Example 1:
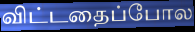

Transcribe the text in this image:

விட்டதைப்போல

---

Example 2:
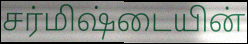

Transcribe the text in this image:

சர்மிஷ்டையின்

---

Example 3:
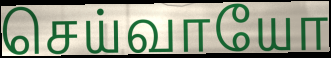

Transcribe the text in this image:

செய்வாயோ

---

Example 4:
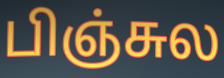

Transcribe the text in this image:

பிஞ்சுல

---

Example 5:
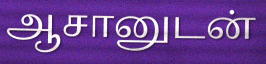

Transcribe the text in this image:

ஆசானுடன்